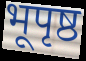
भूपृष्ठ